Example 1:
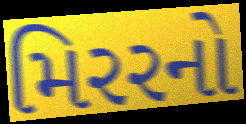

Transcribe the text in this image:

મિરરનો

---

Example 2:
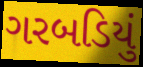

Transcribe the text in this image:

ગરબડિયું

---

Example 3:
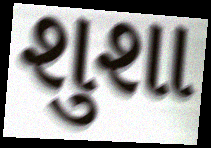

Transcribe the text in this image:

શુશા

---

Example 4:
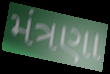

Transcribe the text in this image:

મંત્રણા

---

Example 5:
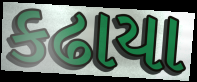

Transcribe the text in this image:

કઢાયા